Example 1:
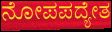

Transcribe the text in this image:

ನೋಪಪದ್ಯೇತ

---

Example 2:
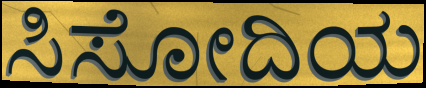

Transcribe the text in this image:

ಸಿಸೋದಿಯ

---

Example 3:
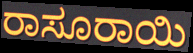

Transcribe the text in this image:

ರಾಸೂರಾಯಿ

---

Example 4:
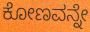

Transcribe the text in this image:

ಕೋಣವನ್ನೇ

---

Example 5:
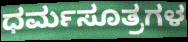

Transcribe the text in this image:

ಧರ್ಮಸೂತ್ರಗಳ